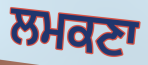
ਲਮਕਣਾ